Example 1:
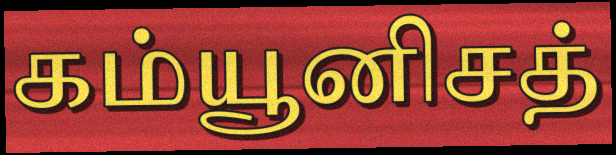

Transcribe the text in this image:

கம்யூனிசத்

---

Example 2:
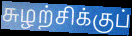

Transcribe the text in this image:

சுழற்சிக்குப்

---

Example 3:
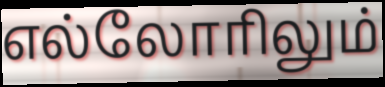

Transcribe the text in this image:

எல்லோரிலும்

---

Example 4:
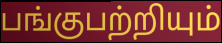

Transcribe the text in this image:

பங்குபற்றியும்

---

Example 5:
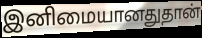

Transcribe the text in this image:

இனிமையானதுதான்